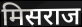
मिसराज